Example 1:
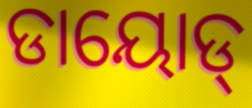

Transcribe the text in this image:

ଡାୟୋଡ୍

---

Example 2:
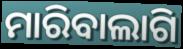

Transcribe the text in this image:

ମାରିବାଲାଗି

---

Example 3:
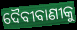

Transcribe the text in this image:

ଦୈବୀବାଣୀକୁ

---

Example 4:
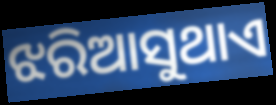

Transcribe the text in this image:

ଝରିଆସୁଥାଏ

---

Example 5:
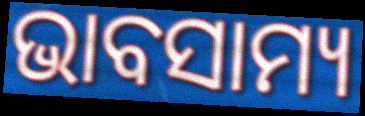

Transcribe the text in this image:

ଭାବସାମ୍ୟ